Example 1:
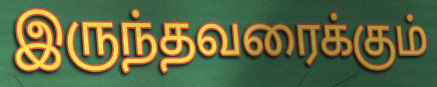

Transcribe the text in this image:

இருந்தவரைக்கும்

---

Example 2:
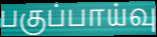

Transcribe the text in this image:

பகுப்பாய்வு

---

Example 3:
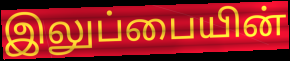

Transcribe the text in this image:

இலுப்பையின்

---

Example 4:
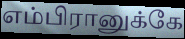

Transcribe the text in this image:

எம்பிரானுக்கே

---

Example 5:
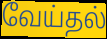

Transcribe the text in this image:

வேய்தல்